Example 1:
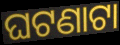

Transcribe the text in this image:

ଘଟଣାଟା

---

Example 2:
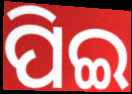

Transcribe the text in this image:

ପିଇ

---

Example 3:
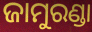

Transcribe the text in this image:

ଜାମୁରଣ୍ଡା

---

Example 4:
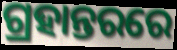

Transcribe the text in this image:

ଗ୍ରହାନ୍ତରରେ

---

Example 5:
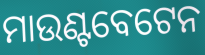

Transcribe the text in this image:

ମାଉଣ୍ଟବେଟେନ